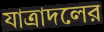
যাত্রাদলের